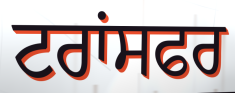
ਟਰਾਂਸਫਰ